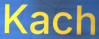
Kach